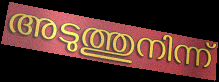
അടുത്തുനിന്ന്